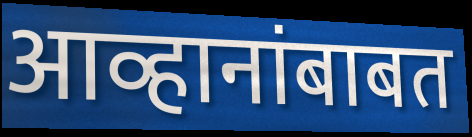
आव्हानांबाबत